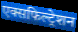
एक्सफिल्ट्रेशन